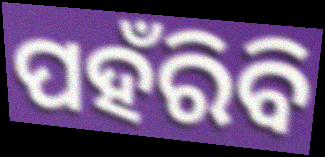
ପହଁରିବି